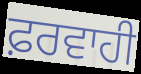
ਫ਼ਰਵਾਹੀ